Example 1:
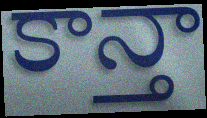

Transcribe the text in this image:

కాన్తా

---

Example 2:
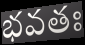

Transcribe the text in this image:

భవతః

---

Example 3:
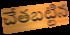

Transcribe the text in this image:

చేతబట్టిన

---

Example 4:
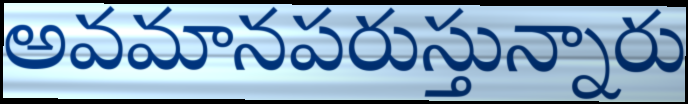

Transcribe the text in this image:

అవమానపరుస్తున్నారు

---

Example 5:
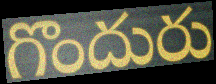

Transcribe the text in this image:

గొందురు